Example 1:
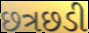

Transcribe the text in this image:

છત્રછડી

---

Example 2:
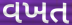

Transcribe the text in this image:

વખત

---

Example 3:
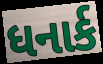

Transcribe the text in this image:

ધનાર્ક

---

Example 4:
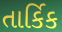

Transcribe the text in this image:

તાર્કિક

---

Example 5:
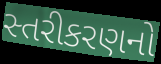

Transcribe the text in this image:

સ્તરીકરણનો